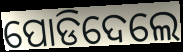
ପୋଡିଦେଲେ